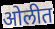
ओलीत